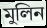
মুলিন